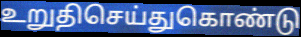
உறுதிசெய்துகொண்டு